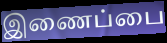
இணைப்பை